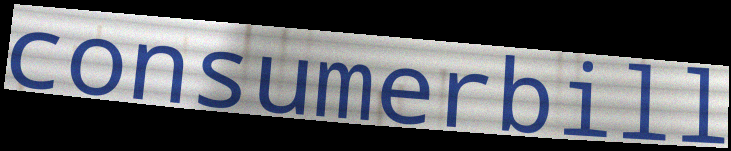
consumerbill